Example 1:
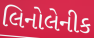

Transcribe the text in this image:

લિનોલેનીક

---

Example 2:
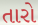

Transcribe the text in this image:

તારો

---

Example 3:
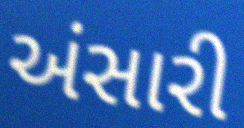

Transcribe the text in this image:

અંસારી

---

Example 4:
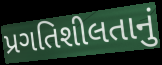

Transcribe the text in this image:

પ્રગતિશીલતાનું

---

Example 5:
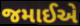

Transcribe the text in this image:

જમાઈએ